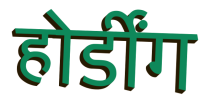
होर्डींग